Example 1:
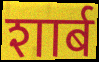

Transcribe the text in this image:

शार्ब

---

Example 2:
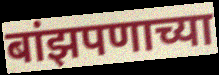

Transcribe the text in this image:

बांझपणाच्या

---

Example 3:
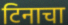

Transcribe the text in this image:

टिनाचा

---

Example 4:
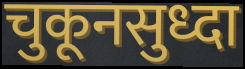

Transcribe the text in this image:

चुकूनसुध्दा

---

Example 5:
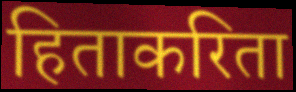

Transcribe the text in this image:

हिताकरिता